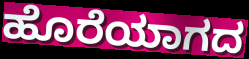
ಹೊರೆಯಾಗದ